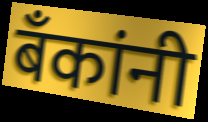
बॅंकांनी